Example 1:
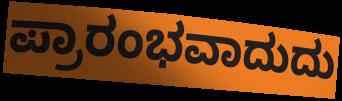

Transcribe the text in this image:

ಪ್ರಾರಂಭವಾದುದು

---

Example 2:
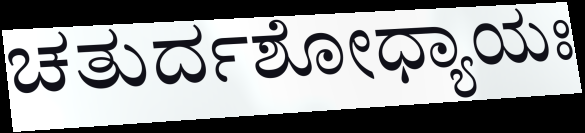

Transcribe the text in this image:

ಚತುರ್ದಶೋಧ್ಯಾಯಃ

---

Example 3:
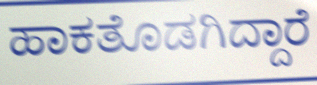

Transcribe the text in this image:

ಹಾಕತೊಡಗಿದ್ದಾರೆ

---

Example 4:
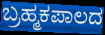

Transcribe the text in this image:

ಬ್ರಹ್ಮಕಪಾಲದ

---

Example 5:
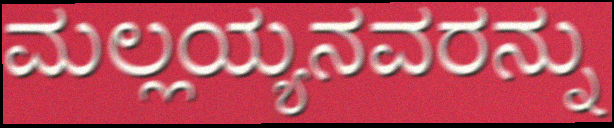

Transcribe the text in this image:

ಮಲ್ಲಯ್ಯನವರನ್ನು